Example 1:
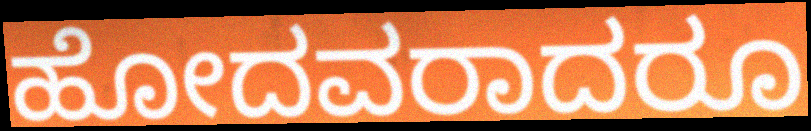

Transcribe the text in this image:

ಹೋದವರಾದರೂ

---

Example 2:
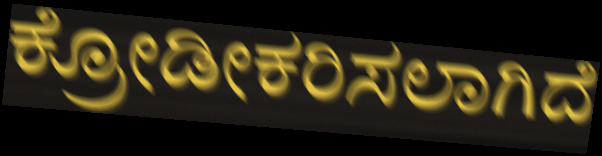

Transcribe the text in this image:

ಕ್ರೋಡೀಕರಿಸಲಾಗಿದೆ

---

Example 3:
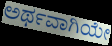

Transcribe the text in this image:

ಅರ್ಥವಾಗಿಯೇ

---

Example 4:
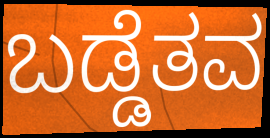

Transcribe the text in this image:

ಬಡ್ಡೆತವ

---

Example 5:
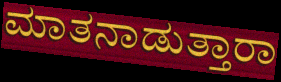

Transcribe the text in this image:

ಮಾತನಾಡುತ್ತಾರಾ